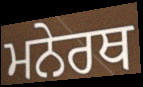
ਮਨੇਰਥ